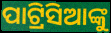
ପାଟ୍ରିସିଆଙ୍କୁ